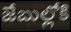
జేబుల్లోకి